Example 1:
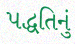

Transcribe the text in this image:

પદ્ધતિનું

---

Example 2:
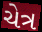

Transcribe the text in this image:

ચેત્ર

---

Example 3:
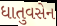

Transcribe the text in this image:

ધાતુવસેન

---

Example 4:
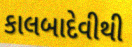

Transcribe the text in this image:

કાલબાદેવીથી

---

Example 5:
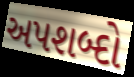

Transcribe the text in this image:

અપશબ્દો